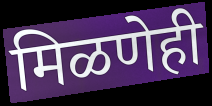
मिळणेही